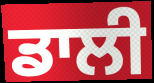
ਡਾਲੀ